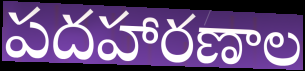
పదహారణాల